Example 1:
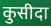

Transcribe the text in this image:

कुसीदा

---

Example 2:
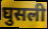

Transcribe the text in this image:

घुसली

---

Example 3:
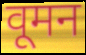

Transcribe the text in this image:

वूमन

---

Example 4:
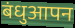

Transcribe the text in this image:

बंधुआपन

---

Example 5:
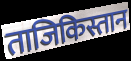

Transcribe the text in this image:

ताजिकिस्तान